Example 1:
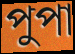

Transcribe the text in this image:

পুপা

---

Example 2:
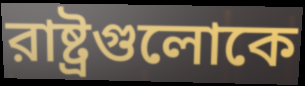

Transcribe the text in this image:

রাষ্ট্রগুলোকে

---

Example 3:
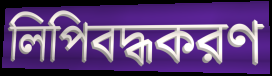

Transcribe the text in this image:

লিপিবদ্ধকরণ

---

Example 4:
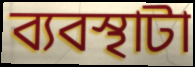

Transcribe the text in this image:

ব্যবস্থাটা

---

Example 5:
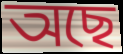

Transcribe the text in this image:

অছে